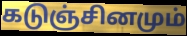
கடுஞ்சினமும்